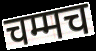
चम्मच